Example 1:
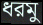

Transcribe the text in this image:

ধরমু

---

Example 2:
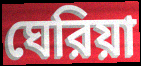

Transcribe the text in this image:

ঘেরিয়া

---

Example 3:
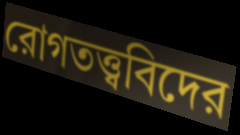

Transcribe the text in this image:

রোগতত্ত্ববিদের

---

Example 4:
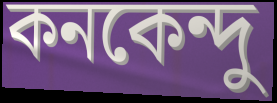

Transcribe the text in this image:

কনকেন্দু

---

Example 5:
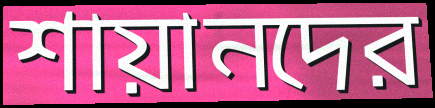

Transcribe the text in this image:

শায়ানদের